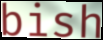
bish